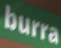
burra